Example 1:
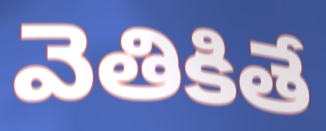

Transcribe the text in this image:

వెతికితే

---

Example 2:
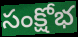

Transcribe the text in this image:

సంక్షోభ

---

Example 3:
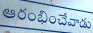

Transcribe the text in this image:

ఆరంభించేవాడు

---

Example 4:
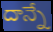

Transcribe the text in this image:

దాన్నే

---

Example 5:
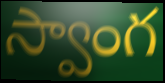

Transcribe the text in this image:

స్వాంగ